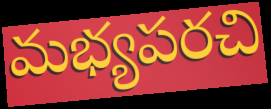
మభ్యపరచి